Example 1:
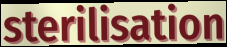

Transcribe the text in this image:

sterilisation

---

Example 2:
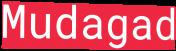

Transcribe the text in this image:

Mudagad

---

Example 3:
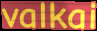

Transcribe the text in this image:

valkai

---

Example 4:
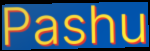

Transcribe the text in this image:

Pashu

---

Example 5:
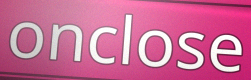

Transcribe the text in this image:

onclose